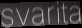
svarita